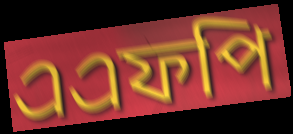
এএফপি